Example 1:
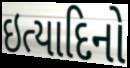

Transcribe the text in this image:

ઇત્યાદિનો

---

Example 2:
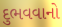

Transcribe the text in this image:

દુભવવાનો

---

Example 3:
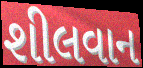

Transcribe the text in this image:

શીલવાન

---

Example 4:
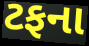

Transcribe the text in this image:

ટફના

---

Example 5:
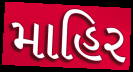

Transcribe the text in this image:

માહિર